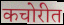
कचोरीत